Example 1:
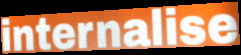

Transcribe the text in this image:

internalise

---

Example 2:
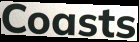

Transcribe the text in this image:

Coasts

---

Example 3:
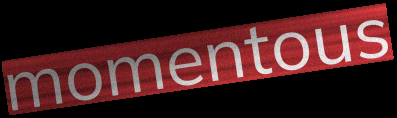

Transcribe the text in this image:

momentous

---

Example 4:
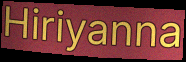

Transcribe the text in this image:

Hiriyanna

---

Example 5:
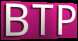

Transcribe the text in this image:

BTP